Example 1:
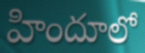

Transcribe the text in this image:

హిందూలో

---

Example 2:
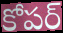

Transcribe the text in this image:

కోపర్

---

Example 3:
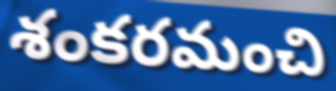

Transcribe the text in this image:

శంకరమంచి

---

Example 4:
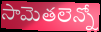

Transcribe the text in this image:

సామెతలెన్నో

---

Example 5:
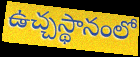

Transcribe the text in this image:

ఉచ్చస్థానంలో